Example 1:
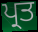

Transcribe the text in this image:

ਪ੍ਰਤ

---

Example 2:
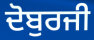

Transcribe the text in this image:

ਦੋਬੁਰਜੀ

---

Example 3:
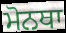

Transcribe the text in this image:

ਮੋਨਥਾ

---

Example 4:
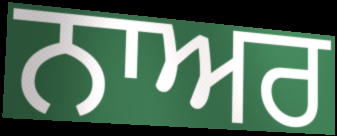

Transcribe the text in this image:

ਨਾਅਰ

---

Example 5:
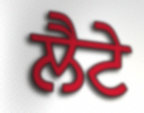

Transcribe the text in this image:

ਲੈਟੇ